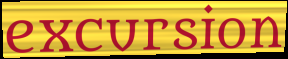
excursion